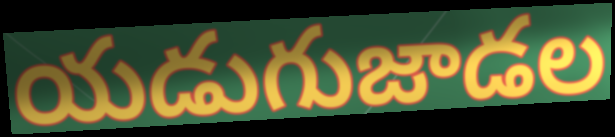
యడుగుజాడల